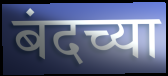
बंदच्या